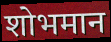
शोभमान